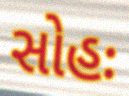
સોહઃ